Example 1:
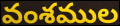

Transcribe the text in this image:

వంశముల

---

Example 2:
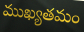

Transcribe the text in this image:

ముఖ్యతమం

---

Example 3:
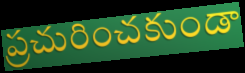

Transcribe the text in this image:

ప్రచురించకుండా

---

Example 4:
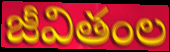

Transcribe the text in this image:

జీవితంల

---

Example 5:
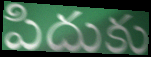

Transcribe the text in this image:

పిదుకు